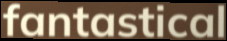
fantastical